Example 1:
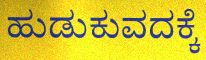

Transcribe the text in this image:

ಹುಡುಕುವದಕ್ಕೆ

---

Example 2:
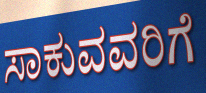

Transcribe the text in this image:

ಸಾಕುವವರಿಗೆ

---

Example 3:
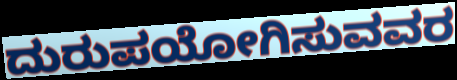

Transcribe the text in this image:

ದುರುಪಯೋಗಿಸುವವರ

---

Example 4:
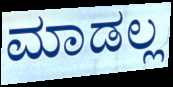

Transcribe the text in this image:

ಮಾಡಲ್ಲ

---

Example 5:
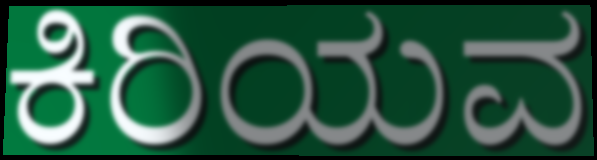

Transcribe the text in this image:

ಕಿರಿಯವ